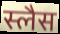
स्लैस